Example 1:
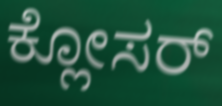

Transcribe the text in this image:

ಕ್ಲೋಸರ್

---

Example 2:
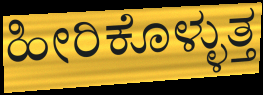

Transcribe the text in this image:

ಹೀರಿಕೊಳ್ಳುತ್ತ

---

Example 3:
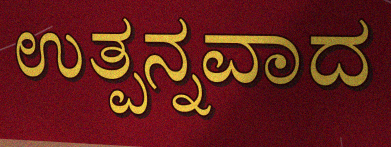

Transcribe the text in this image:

ಉತ್ಪನ್ನವಾದ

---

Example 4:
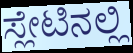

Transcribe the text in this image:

ಸ್ಲೇಟಿನಲ್ಲಿ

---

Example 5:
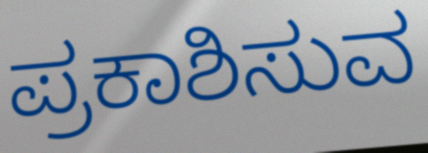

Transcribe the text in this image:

ಪ್ರಕಾಶಿಸುವ